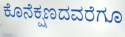
ಕೊನೆಕ್ಷಣದವರೆಗೂ